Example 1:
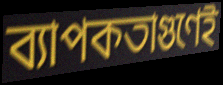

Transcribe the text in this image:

ব্যাপকতাগুণেই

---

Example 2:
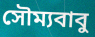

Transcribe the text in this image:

সৌম্যবাবু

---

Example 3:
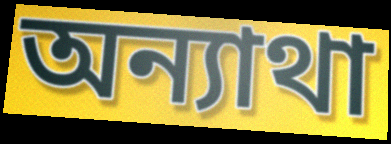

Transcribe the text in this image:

অন্যাথা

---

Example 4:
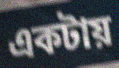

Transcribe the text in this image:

একটায়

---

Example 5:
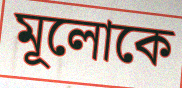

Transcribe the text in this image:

মূলোকে